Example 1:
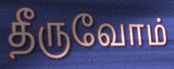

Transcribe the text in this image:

தீருவோம்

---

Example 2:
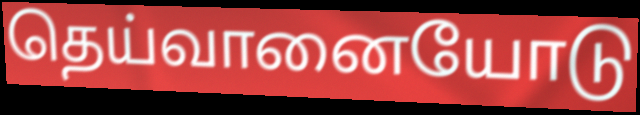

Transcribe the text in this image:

தெய்வானையோடு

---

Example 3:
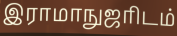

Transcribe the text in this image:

இராமாநுஜரிடம்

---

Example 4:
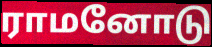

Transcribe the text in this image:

ராமனோடு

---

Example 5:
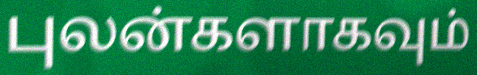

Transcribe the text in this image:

புலன்களாகவும்